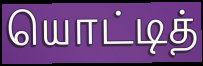
யொட்டித்